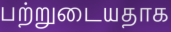
பற்றுடையதாக